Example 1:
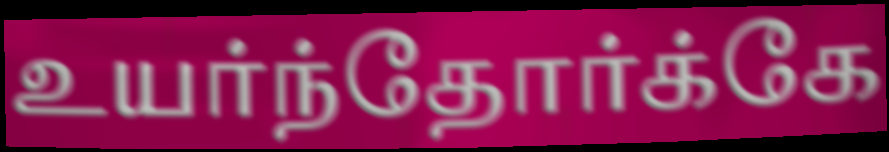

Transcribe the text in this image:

உயர்ந்தோர்க்கே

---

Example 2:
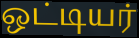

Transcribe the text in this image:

ஒட்டியர்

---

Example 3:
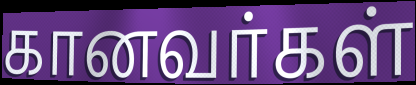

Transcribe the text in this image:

கானவர்கள்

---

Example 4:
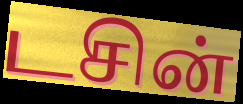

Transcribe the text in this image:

டசின்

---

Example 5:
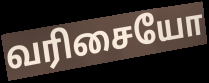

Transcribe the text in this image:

வரிசையோ